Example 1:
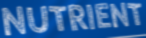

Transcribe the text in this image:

NUTRIENT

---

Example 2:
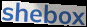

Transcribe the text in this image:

shebox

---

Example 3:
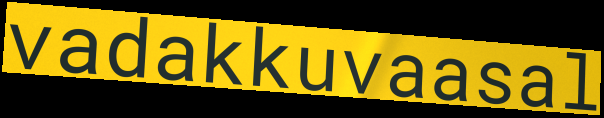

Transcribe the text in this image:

vadakkuvaasal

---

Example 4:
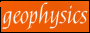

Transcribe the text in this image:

geophysics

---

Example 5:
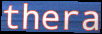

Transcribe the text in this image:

thera